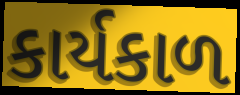
કાર્યકાળ